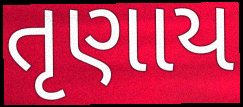
તૃણાય